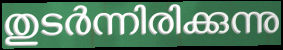
തുടർന്നിരിക്കുന്നു